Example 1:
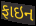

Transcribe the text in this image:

ફાઇન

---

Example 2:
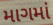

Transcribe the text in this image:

માગમાં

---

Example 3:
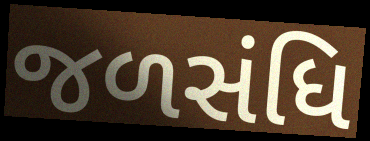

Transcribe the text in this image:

જળસંધિ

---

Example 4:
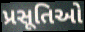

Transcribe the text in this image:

પ્રસૂતિઓ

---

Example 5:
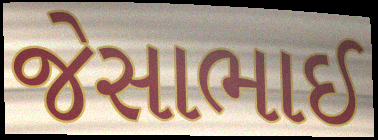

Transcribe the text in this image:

જેસાભાઈ